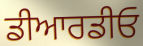
ਡੀਆਰਡੀਓ